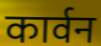
कार्वन